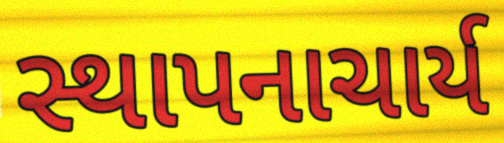
સ્થાપનાચાર્ય